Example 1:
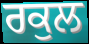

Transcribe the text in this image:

ਰਕੁਲ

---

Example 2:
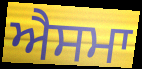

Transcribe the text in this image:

ਐਸਮਾ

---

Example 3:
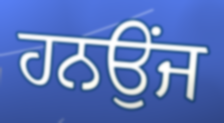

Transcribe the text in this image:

ਹਨਉਂਜ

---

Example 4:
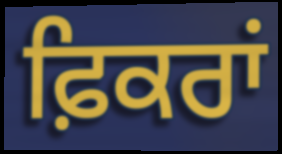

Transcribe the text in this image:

ਫ਼ਿਕਰਾਂ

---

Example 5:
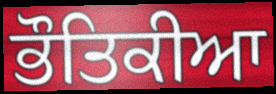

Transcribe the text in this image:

ਭੌਤਿਕੀਆ